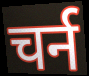
चर्न